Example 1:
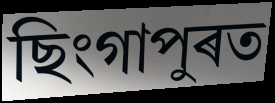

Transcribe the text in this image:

ছিংগাপুৰত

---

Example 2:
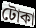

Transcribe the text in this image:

টোকা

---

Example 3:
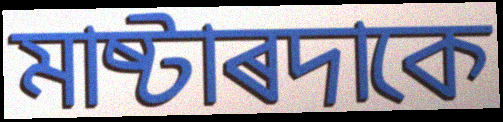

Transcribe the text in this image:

মাষ্টাৰদাকে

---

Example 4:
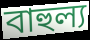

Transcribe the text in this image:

বাহুল্য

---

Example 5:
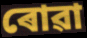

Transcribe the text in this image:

ৰোৱা